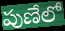
పుణేలో